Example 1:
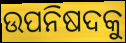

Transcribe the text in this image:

ଉପନିଷଦକୁ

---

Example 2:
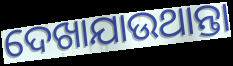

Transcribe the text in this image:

ଦେଖାଯାଉଥାନ୍ତା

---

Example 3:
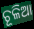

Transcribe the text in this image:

ଚୂଳିଆ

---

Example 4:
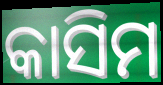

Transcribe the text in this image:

କାସିମ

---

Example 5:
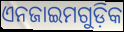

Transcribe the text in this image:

ଏନଜାଇମଗୁଡ଼ିକ